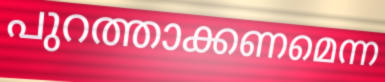
പുറത്താക്കണമെന്ന